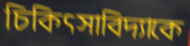
চিকিৎসাবিদ্যাকে